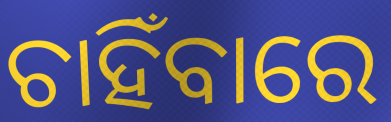
ଚାହିଁବାରେ